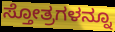
ಸ್ತೋತ್ರಗಳನ್ನೂ